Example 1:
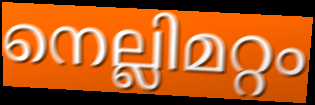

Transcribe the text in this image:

നെല്ലിമറ്റം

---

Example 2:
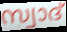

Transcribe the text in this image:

സ്വാദ്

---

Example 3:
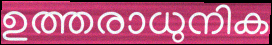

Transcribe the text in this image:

ഉത്തരാധുനിക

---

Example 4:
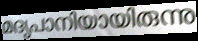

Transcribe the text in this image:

മദ്യപാനിയായിരുന്നു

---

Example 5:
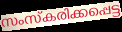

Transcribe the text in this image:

സംസ്‌കരിക്കപ്പെട്ട